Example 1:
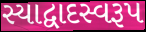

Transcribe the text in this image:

સ્યાદ્વાદસ્વરૂપ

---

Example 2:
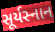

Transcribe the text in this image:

સૂર્યસ્નાન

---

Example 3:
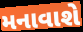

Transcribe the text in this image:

મનાવાશે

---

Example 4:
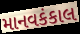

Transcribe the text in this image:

માનવકંકાલ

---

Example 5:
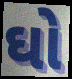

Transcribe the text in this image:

ઘો